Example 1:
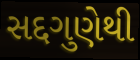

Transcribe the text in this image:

સદ્દગુણેથી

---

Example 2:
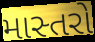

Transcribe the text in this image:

માસ્તરો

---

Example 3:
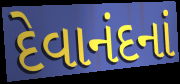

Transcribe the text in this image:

દેવાનંદનાં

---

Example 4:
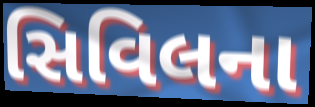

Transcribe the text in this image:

સિવિલના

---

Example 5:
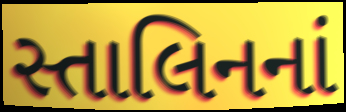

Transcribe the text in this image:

સ્તાલિનનાં